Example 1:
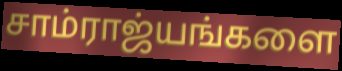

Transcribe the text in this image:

சாம்ராஜ்யங்களை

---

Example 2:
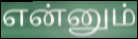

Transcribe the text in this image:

என்னும்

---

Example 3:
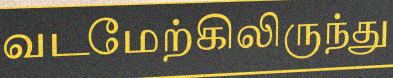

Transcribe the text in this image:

வடமேற்கிலிருந்து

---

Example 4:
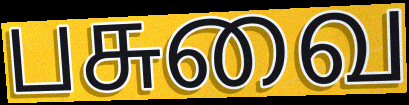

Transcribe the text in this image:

பசுவை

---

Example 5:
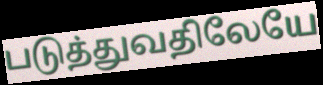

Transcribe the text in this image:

படுத்துவதிலேயே